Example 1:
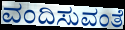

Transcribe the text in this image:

ವಂದಿಸುವಂತೆ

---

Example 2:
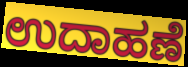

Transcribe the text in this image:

ಉದಾಹಣೆ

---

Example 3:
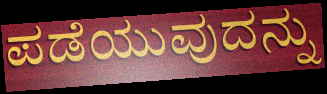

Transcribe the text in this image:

ಪಡೆಯುವುದನ್ನು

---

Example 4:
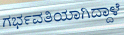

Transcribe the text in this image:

ಗರ್ಭವತಿಯಾಗಿದ್ದಾಳೆ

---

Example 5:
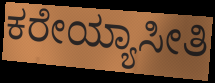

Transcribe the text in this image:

ಕರೇಯ್ಯಾಸೀತಿ